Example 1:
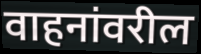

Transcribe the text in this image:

वाहनांवरील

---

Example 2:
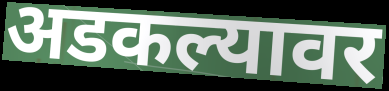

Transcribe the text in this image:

अडकल्यावर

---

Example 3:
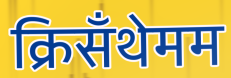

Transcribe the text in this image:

क्रिसँथेमम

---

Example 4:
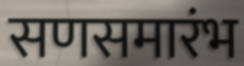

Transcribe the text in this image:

सणसमारंभ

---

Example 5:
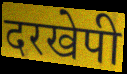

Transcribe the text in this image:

दरखेपी